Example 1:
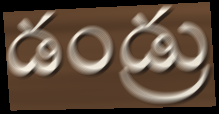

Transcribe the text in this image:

డండ్రు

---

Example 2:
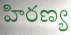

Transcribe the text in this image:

హిరణ్య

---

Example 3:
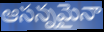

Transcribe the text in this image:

ఆసన్నమైనా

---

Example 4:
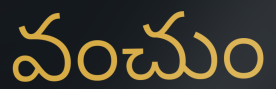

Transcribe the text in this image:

వంచుం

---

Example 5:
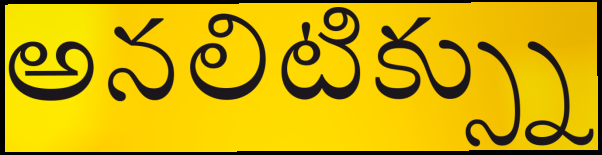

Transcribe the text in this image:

అనలిటిక్స్ను